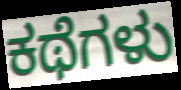
ಕಥೆಗಳು